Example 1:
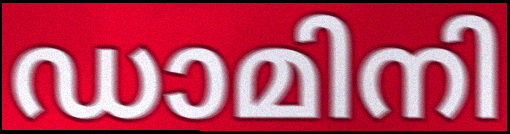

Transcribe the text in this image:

ഡാമിനി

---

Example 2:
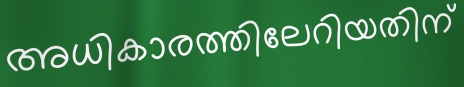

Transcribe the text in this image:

അധികാരത്തിലേറിയതിന്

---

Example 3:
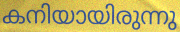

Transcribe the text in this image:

കനിയായിരുന്നു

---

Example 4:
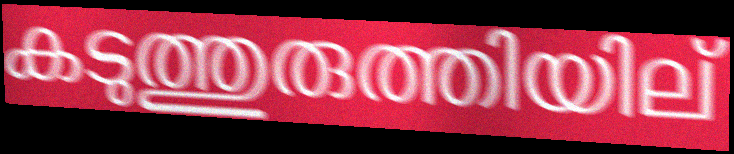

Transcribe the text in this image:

കടുത്തുരുത്തിയില്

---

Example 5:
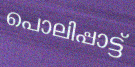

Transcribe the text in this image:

പൊലിപ്പാട്ട്